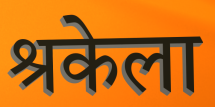
श्रकेला